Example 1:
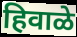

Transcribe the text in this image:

हिवाळे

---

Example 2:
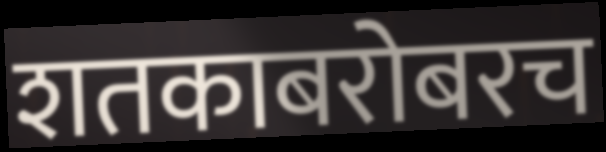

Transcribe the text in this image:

शतकाबरोबरच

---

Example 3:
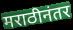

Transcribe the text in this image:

मराठीनंतर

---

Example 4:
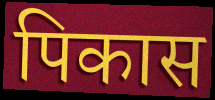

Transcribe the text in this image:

पिकास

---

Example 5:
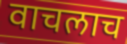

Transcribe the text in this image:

वाचलाच